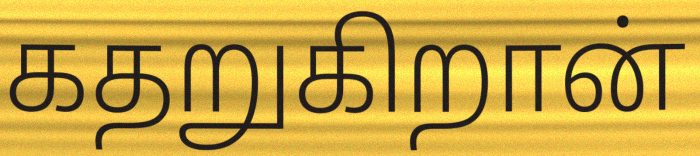
கதறுகிறான்